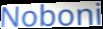
Noboni